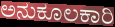
ಅನುಕೂಲಕಾರಿ